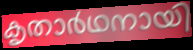
കൃതാർഥനായി